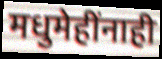
मधुमेहींनाही